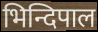
भिन्दिपाल